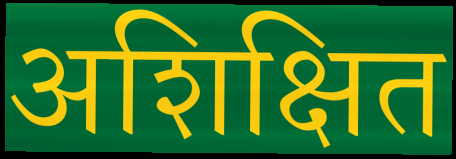
अशिक्षित